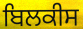
ਬਿਲਕੀਸ